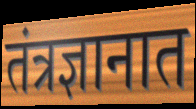
तंत्रज्ञानात